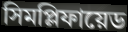
সিমপ্লিফায়েড